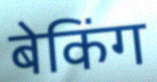
बेकिंग